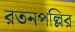
রতনপল্লির